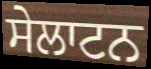
ਸੇਲਾਟਨ